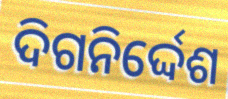
ଦିଗନିର୍ଦ୍ଦେଶ